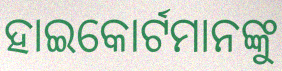
ହାଇକୋର୍ଟମାନଙ୍କୁ